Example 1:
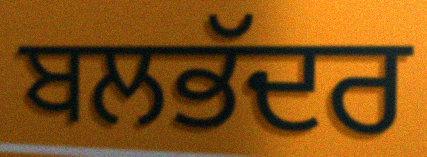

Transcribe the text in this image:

ਬਲਭੱਦਰ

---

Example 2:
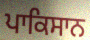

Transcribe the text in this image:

ਪਾਕਿਸਾਨ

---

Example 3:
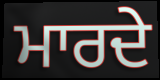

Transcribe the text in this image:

ਮਾਰਦੇ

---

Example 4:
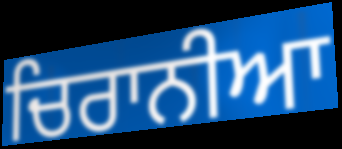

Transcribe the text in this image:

ਚਿਰਾਨੀਆ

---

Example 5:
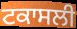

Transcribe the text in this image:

ਟਕਾਸਲੀ